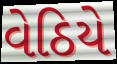
વેઠિયે